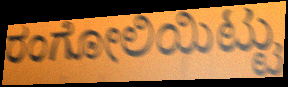
ರಂಗೋಲಿಯಿಟ್ಟು